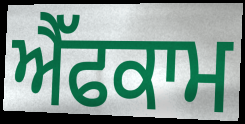
ਐੱਫਕਾਮ